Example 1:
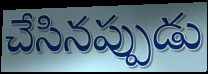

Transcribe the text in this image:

చేసినప్పుడు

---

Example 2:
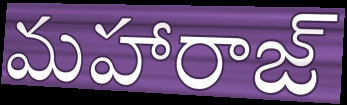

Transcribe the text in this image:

మహారాజ్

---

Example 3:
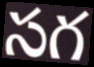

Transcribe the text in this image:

సగ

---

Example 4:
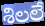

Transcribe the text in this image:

శిలలే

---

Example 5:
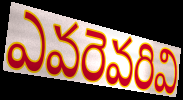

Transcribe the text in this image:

ఎవరెవరివి